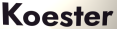
Koester